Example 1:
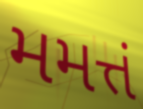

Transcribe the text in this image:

મમત્તં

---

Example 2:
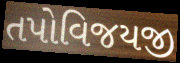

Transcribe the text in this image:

તપોવિજયજી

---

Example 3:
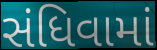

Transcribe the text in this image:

સંધિવામાં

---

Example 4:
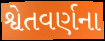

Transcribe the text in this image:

શ્વેતવર્ણના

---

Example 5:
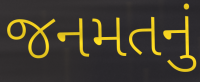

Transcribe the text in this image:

જનમતનું